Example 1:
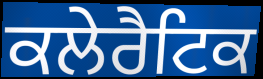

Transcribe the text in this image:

ਕਲੇਰੈਟਿਕ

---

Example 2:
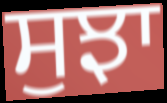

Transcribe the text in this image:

ਸੁਝਾ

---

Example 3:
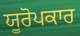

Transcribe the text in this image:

ਯੂਰੋਪਕਾਰ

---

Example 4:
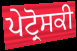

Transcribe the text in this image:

ਪੇਟ੍ਰੋਸਕੀ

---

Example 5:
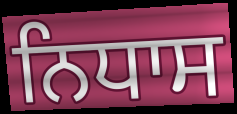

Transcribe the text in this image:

ਨਿਧਾਸ